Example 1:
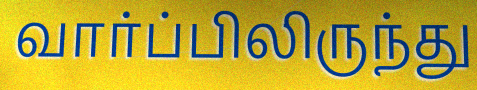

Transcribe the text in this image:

வார்ப்பிலிருந்து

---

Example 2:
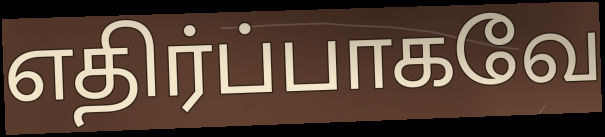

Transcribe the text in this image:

எதிர்ப்பாகவே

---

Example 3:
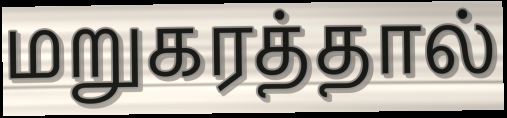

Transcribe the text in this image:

மறுகரத்தால்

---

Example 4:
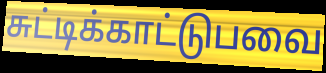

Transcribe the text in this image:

சுட்டிக்காட்டுபவை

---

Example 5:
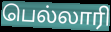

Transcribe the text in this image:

பெல்லாரி